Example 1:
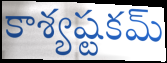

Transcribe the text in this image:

కాశ్యష్టకమ్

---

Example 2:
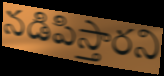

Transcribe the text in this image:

నడిపిస్తారని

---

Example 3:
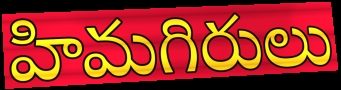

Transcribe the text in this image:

హిమగిరులు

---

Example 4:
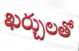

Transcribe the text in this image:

ఖర్చులతో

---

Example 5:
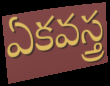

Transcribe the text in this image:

ఏకవస్త్ర